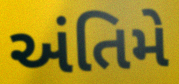
અંતિમે